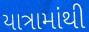
યાત્રામાંથી